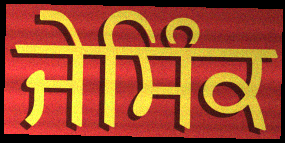
ਜੇਸਿੰਕ